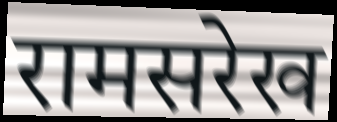
रामसरेख